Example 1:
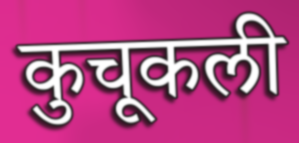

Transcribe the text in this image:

कुचूकली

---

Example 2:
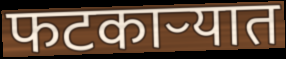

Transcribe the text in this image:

फटकाऱ्यात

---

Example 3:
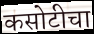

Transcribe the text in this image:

कसोटीचा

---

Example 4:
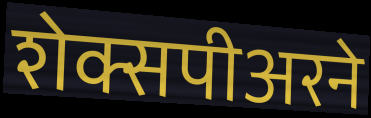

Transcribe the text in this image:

शेक्सपीअरने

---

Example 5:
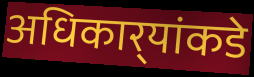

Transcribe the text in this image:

अधिकार्‍यांकडे